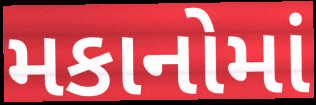
મકાનોમાં